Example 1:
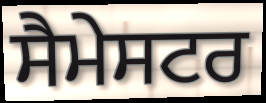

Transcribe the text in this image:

ਸੈਮੇਸਟਰ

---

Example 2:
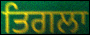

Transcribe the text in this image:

ਤਿਗਲਾ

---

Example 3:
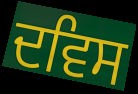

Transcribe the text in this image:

ਦਵਿਸ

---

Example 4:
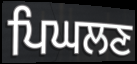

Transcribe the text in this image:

ਪਿਘਲਣ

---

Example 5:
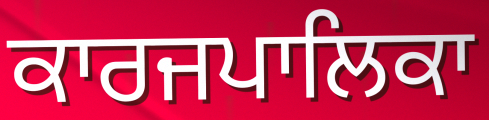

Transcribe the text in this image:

ਕਾਰਜਪਾਲਿਕਾ